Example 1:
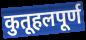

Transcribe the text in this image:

कुतूहलपूर्ण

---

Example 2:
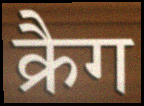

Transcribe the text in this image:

क्रैग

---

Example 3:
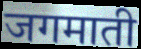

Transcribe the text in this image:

जगमाती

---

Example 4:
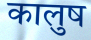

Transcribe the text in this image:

कालुष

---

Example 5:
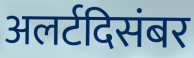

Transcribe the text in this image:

अलर्टदिसंबर